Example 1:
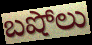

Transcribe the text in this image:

బషోలు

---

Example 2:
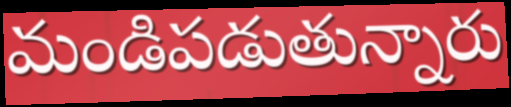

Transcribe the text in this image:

మండిపడుతున్నారు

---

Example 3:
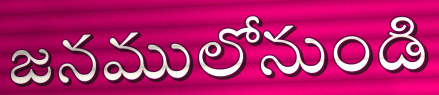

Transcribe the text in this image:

జనములోనుండి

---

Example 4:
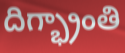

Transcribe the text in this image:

దిగ్భ్రాంతి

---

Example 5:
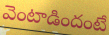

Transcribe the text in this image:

వెంటాడిందంటే